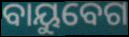
ବାୟୁବେଗ